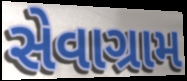
સેવાગ્રામ